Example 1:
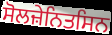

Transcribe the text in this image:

ਸੋਲਜ਼ੇਨਿਤਸਿਨ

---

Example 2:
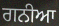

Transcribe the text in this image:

ਗਨੀਆ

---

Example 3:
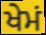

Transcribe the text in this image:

ਖੇਮਂ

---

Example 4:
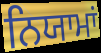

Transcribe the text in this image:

ਨਿਯਾਮਾਂ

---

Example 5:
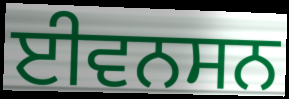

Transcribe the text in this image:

ਈਵਨਸਨ